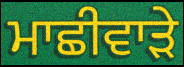
ਮਾਛੀਵਾੜੇ